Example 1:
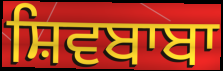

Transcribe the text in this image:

ਸ਼ਿਵਬਾਬਾ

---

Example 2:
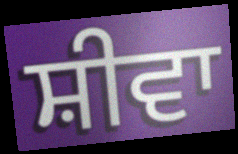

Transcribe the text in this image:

ਸ਼ੀਵਾ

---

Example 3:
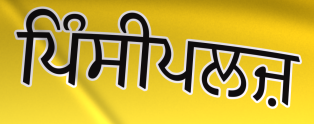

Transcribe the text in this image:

ਪਿੰਸੀਪਲਜ਼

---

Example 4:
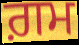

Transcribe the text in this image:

ਗ਼ਮ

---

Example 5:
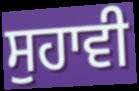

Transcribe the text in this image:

ਸੁਹਾਵੀ